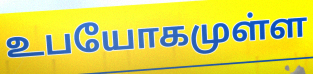
உபயோகமுள்ள